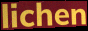
lichen